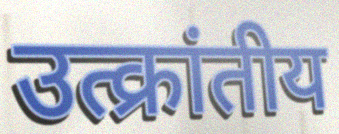
उत्क्रांतीय